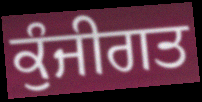
ਕੁੰਜੀਗਤ